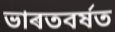
ভাৰতবৰ্ষত